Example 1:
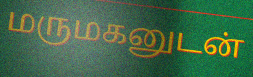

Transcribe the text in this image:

மருமகனுடன்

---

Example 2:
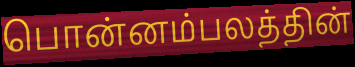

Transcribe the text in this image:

பொன்னம்பலத்தின்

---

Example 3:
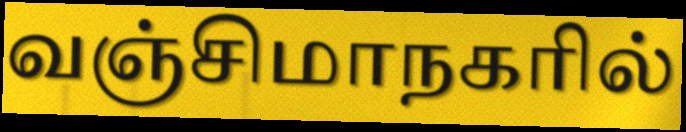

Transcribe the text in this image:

வஞ்சிமாநகரில்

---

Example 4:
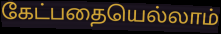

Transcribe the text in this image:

கேட்பதையெல்லாம்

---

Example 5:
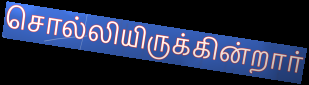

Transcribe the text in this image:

சொல்லியிருக்கின்றார்